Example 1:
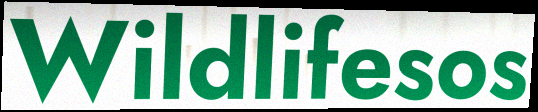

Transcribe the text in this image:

Wildlifesos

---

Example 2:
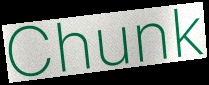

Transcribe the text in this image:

Chunk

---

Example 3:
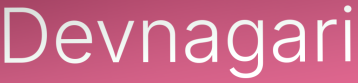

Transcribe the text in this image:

Devnagari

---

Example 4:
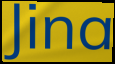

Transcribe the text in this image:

Jina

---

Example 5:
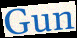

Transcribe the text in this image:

Gun